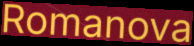
Romanova